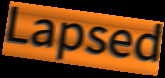
Lapsed